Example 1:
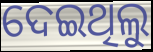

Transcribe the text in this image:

ଦେଇଥିଲୁ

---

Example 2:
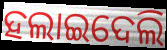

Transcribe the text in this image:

ହଲାଇଦେଲି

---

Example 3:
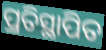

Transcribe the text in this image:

ପ୍ରତିସ୍ଥାପିତ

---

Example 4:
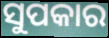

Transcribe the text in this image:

ସୁପକାର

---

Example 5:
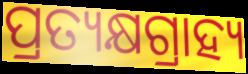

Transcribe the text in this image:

ପ୍ରତ୍ୟକ୍ଷଗ୍ରାହ୍ୟ